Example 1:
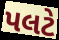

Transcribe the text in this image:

પલટે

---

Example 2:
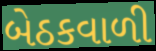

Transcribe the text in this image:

બેઠકવાળી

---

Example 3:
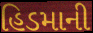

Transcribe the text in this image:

હિડમાની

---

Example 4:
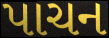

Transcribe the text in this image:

પાચન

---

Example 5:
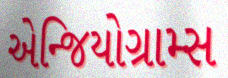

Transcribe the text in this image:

એન્જિયોગ્રામ્સ